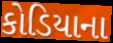
કોડિયાના